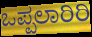
ಒಪ್ಪಲಾರಿರಿ